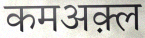
कमअक़्ल